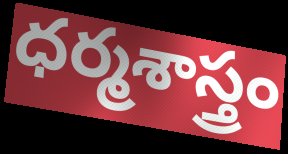
ధర్మశాస్త్రం